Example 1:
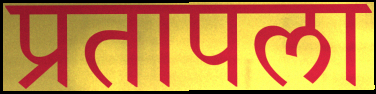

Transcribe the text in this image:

प्रतापला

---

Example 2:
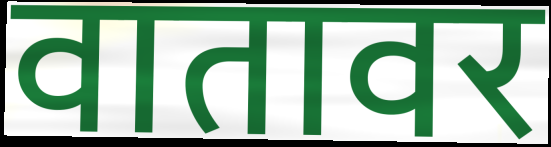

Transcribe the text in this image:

वातावर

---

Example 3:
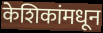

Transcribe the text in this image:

केशिकांमधून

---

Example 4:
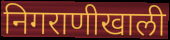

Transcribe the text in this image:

निगराणीखाली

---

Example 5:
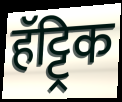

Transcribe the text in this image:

हॅट्ट्रिक